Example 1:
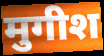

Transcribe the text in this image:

मुगीश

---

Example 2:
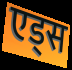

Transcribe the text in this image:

एड्स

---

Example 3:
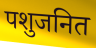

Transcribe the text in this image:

पशुजनित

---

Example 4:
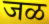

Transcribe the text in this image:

जळ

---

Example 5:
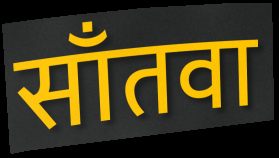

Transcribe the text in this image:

साँतवा